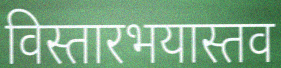
विस्तारभयास्तव